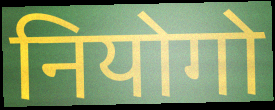
नियोगो